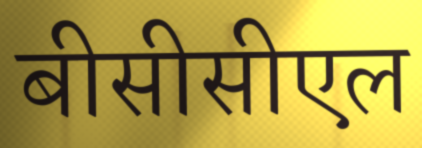
बीसीसीएल